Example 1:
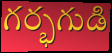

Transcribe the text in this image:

గర్భగుడి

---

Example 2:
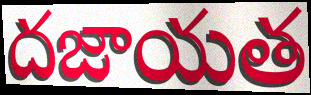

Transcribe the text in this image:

దజాయత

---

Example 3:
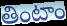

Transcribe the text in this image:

తింటాం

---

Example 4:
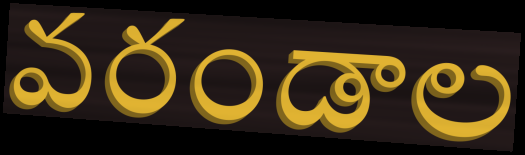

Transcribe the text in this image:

వరండాల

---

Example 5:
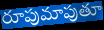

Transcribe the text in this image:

రూపుమాపుతూ